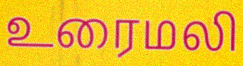
உரைமலி